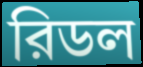
রিডল